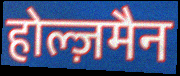
होल्ज़मैन